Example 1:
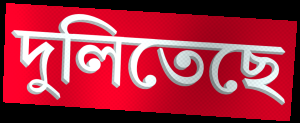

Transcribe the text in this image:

দুলিতেছে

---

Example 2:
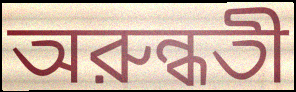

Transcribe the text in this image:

অরুন্ধতী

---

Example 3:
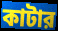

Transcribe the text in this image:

কাটার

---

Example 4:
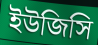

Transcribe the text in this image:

ইউজিসি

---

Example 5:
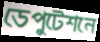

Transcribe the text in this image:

ডেপুটেশনে